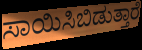
ಸಾಯಿಸಿಬಿಡುತ್ತಾರೆ